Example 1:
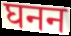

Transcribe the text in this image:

घनन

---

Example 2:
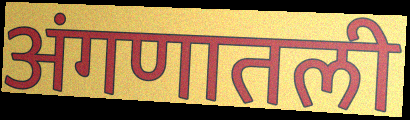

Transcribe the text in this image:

अंगणातली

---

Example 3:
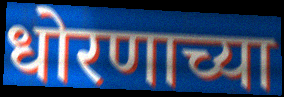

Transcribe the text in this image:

धोरणाच्या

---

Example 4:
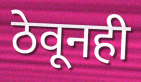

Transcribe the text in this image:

ठेवूनही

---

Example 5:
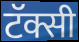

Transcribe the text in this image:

टॅक्सी